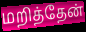
மறித்தேன்